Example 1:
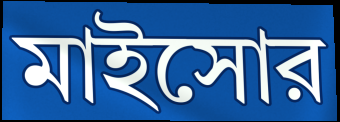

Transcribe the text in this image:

মাইসোর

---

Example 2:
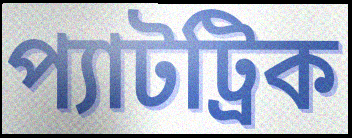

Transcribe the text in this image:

প্যাটট্রিক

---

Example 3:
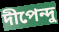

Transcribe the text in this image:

দীপেন্দু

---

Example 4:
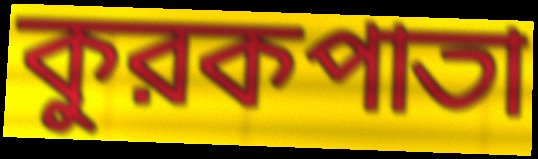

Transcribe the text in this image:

কুরকপাতা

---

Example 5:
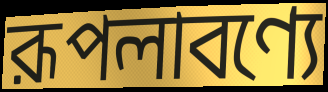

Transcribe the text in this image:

রূপলাবণ্যে